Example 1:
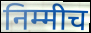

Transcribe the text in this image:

निम्मीच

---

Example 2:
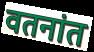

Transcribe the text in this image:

वतनांत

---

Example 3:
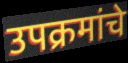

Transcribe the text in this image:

उपक्रमांचे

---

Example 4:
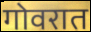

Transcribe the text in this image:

गोवरात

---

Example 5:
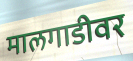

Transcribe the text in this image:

मालगाडीवर